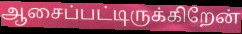
ஆசைப்பட்டிருக்கிறேன்